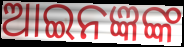
ଆଇନଜ୍ଞଙ୍କ